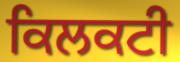
ਕਿਲਕਟੀ